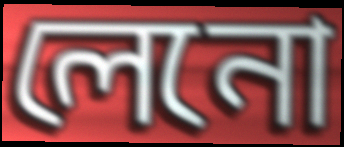
লেনো